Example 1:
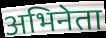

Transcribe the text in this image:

अभिनेता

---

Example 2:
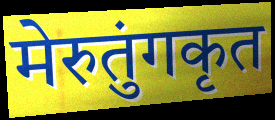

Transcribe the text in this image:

मेरुतुंगकृत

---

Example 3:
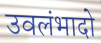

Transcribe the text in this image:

उवलंभादो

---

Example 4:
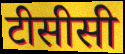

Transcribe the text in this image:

टीसीसी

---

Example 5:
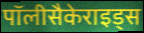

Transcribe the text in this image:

पॉलीसैकेराइड्स